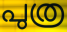
പുത്ര